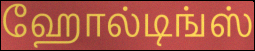
ஹோல்டிங்ஸ்